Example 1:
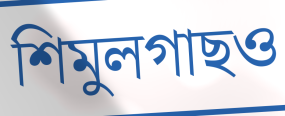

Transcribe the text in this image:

শিমুলগাছও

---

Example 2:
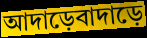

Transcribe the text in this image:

আদাড়েবাদাড়ে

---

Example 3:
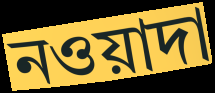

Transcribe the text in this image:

নওয়াদা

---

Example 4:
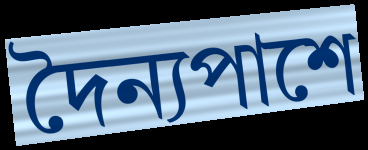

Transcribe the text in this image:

দৈন্যপাশে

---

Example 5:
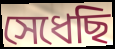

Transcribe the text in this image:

সেধেছি